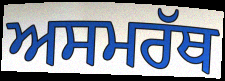
ਅਸਮਰੱਥ